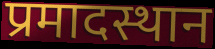
प्रमादस्थान